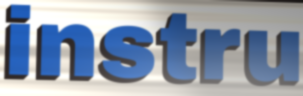
instru